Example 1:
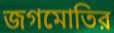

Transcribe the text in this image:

জগমোতির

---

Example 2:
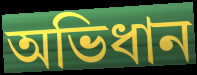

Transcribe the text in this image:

অভিধান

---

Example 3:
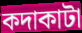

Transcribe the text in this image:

কদাকাটা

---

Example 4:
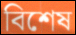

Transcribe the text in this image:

বিশেষ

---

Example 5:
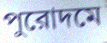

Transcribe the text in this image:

পুরোদমে